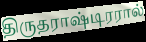
திருதராஷ்டிரரால்